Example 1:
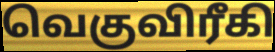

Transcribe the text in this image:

வெகுவிரீகி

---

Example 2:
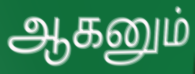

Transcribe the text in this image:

ஆகனும்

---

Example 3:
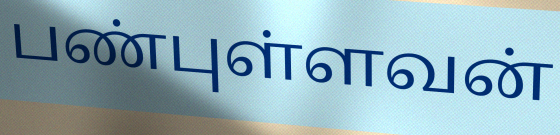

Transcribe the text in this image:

பண்புள்ளவன்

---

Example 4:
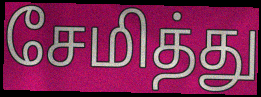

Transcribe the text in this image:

சேமித்து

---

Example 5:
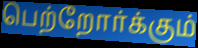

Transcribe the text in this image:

பெற்றோர்க்கும்